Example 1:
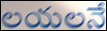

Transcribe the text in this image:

లయలనే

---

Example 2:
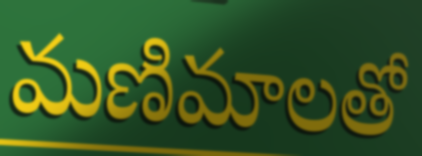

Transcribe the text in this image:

మణిమాలతో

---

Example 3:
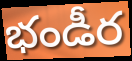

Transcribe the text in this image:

భండీర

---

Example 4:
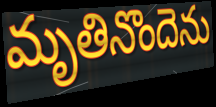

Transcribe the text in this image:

మృతినొందెను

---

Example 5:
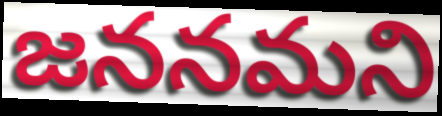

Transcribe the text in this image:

జననమని